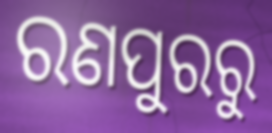
ରଣପୁରରୁ